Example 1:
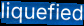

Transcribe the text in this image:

liquefied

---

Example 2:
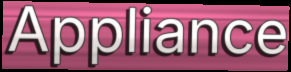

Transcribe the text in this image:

Appliance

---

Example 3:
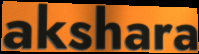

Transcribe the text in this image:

akshara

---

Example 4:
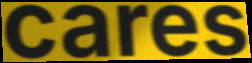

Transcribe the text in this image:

cares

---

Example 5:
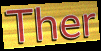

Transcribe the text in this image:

Ther